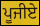
ਪੂਜੀਏ